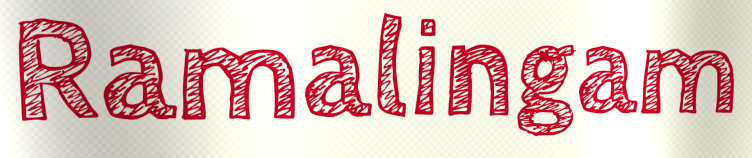
Ramalingam